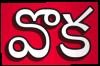
వొక